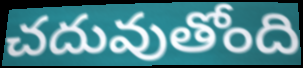
చదువుతోంది